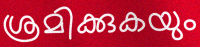
ശ്രമിക്കുകയും